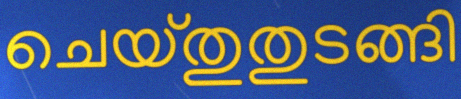
ചെയ്തുതുടങ്ങി